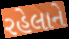
રહેલાને